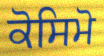
ਕੋਸਿਮੋ